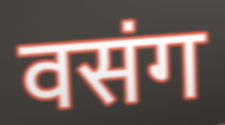
वसंग